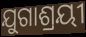
ଯୁଗାଶ୍ରୟୀ